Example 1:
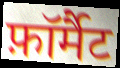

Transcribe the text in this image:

फ़ॉर्मैट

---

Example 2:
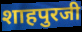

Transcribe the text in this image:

शाहपुरजी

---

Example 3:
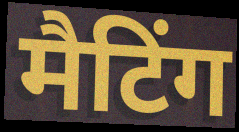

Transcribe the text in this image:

मैटिंग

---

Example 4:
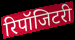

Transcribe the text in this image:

रिपॉजिटरी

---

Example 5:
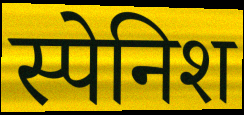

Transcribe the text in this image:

स्पेनिश